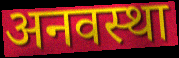
अनवस्था